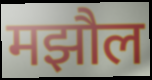
मझौल